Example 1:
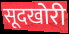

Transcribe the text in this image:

सूदखोरी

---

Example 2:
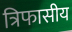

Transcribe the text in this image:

त्रिफासीय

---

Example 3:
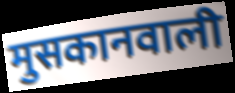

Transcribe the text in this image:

मुसकानवाली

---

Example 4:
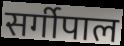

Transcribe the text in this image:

सर्गीपाल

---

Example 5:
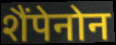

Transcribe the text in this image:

शैंपेनोन